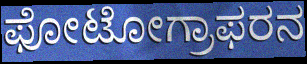
ಫೋಟೋಗ್ರಾಫರನ